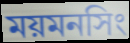
ময়মনসিং